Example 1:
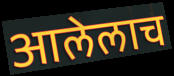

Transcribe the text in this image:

आलेलाच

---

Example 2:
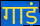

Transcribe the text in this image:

गाडं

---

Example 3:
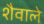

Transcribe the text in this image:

शैवाले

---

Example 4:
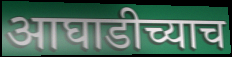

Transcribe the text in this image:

आघाडीच्याच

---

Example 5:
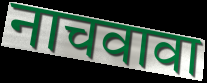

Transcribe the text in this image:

नाचवावा